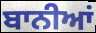
ਬਾਨੀਆਂ